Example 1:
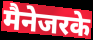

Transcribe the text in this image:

मैनेजरके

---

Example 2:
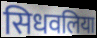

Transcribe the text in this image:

सिधवलिया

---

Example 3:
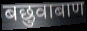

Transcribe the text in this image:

बछुवाबाण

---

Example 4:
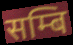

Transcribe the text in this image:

सम्बि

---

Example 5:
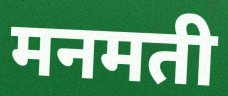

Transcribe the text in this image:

मनमती